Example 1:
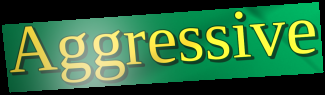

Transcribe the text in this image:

Aggressive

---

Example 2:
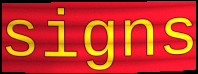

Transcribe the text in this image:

signs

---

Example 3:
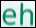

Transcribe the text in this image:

eh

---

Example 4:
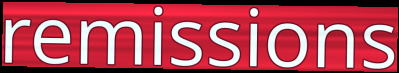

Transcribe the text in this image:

remissions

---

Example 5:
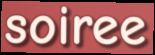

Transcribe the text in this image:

soiree